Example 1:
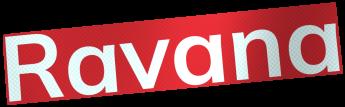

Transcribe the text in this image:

Ravana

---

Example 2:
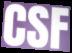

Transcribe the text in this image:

CSF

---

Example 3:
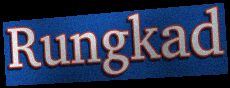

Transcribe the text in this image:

Rungkad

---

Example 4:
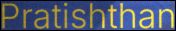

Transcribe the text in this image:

Pratishthan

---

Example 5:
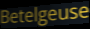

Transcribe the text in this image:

Betelgeuse